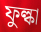
ফুল্কা